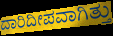
ದಾರಿದೀಪವಾಗಿತ್ತು